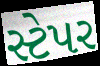
સ્ટેપર